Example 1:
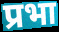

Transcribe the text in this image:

प्रभा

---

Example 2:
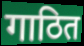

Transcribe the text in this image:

गाठित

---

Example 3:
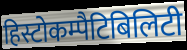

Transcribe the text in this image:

हिस्टोकम्पैटिबिलिटी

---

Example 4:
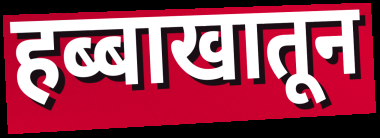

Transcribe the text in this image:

हब्बाखातून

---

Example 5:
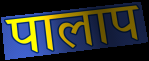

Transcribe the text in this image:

पालाप